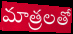
మాత్రలతో